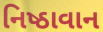
નિષ્ઠાવાન